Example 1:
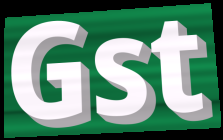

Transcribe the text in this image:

Gst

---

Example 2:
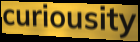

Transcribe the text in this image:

curiousity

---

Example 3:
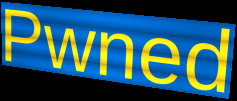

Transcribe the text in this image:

Pwned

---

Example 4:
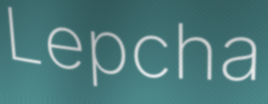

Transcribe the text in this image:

Lepcha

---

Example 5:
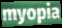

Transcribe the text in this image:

myopia